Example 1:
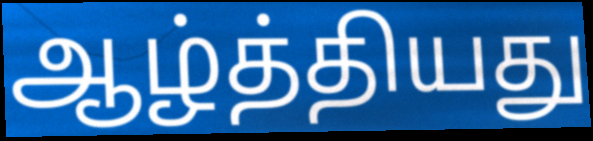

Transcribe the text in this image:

ஆழ்த்தியது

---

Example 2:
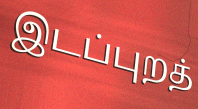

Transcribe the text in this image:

இடப்புறத்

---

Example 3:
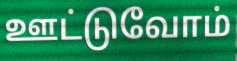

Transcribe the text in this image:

ஊட்டுவோம்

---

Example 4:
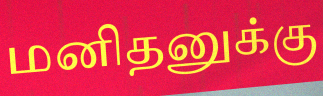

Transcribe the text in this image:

மனிதனுக்கு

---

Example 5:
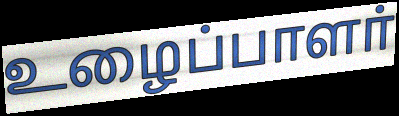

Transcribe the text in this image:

உழைப்பாளர்